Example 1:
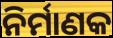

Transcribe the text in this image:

ନିର୍ମାଣକ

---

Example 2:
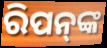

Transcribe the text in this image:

ରିପନ୍‍ଙ୍କ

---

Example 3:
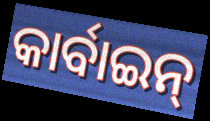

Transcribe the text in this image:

କାର୍ବାଇନ୍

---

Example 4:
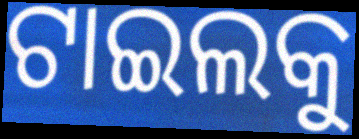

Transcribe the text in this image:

ଟାଇଲକୁ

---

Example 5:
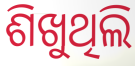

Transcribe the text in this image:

ଶିଖୁଥିଲି